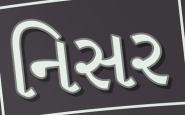
નિસર